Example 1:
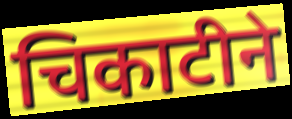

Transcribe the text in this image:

चिकाटीने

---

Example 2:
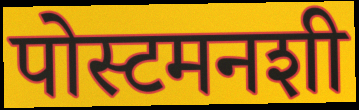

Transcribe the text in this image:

पोस्टमनशी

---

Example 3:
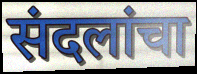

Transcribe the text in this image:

संदलांचा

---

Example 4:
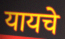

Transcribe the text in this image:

यायचे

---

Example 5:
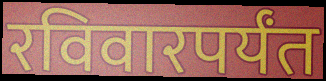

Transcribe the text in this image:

रविवारपर्यंत